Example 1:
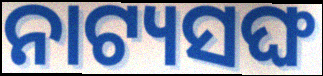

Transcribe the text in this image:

ନାଟ୍ୟସଙ୍ଘ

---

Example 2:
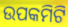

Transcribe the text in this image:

ଉପକମିଟି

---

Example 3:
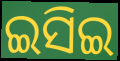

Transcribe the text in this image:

ଇସିଇ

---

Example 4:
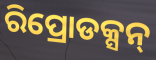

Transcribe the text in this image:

ରିପ୍ରୋଡକ୍ସନ୍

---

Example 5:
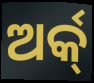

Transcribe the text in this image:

ଅର୍କ୍